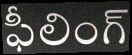
ఫీలింగ్